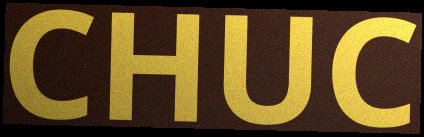
CHUC